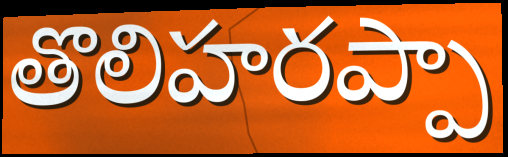
తొలిహరప్పా